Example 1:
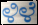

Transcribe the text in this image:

ಳಿಳೆ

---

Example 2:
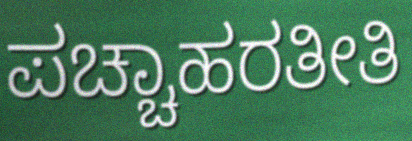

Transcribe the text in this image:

ಪಚ್ಚಾಹರತೀತಿ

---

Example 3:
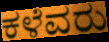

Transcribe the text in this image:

ಕಳೆವರು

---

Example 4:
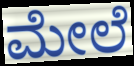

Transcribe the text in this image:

ಮೇಲೆ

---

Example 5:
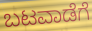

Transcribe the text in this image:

ಬಟವಾಡೆಗೆ